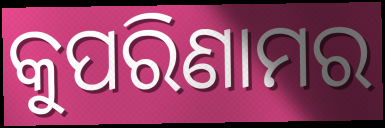
କୁପରିଣାମର